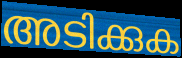
അടിക്കുക